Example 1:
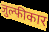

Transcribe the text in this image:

जुल्फीकार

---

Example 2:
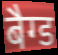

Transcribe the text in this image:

बैग्ड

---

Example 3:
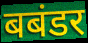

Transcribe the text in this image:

बबंडर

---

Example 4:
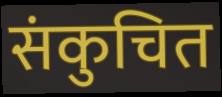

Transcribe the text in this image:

संकुचित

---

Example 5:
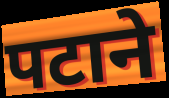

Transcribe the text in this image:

पटाने